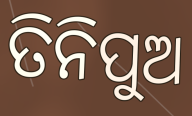
ତିନିପୁଅ